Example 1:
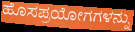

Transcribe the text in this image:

ಹೊಸಪ್ರಯೋಗಗಳನ್ನು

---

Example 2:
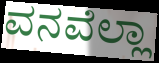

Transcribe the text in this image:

ವನವೆಲ್ಲಾ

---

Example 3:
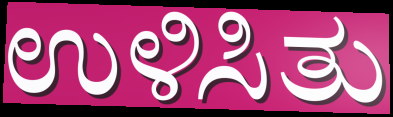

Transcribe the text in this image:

ಉಳಿಸಿತು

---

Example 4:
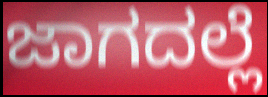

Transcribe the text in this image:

ಜಾಗದಲ್ಲೆ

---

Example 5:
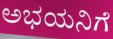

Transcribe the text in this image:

ಅಭಯನಿಗೆ